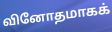
வினோதமாகக்